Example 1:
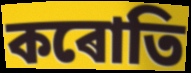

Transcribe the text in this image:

কৰোতি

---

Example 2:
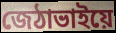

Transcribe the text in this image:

জেঠাভাইয়ে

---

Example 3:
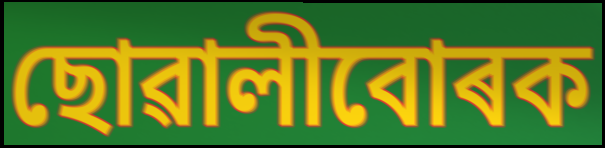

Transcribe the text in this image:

ছোৱালীবোৰক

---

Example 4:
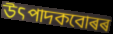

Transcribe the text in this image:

উৎপাদকবোৰৰ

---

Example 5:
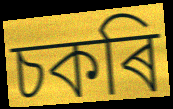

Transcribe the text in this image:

চকৰি